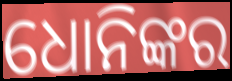
ଧୋନିଙ୍କର